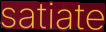
satiate